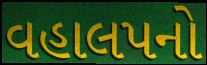
વહાલપનો